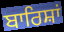
ਬਾਰਿਸ਼ਾਂ